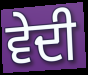
ਵੇਦੀ